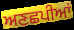
ਅਣਛਪੀਆਂ